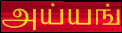
அய்யங்